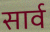
सार्व